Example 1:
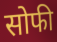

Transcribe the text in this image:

सोफी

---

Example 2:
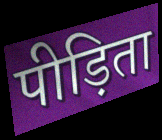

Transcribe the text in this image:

पीड़िता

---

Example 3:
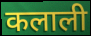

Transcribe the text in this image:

कलाली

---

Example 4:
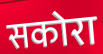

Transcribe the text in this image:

सकोरा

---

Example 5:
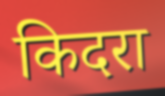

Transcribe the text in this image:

किदरा